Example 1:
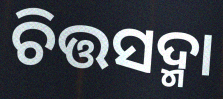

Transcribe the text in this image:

ଚିତ୍ତସଦ୍ମା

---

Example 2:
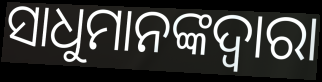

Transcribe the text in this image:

ସାଧୁମାନଙ୍କଦ୍ଵାରା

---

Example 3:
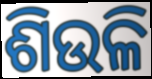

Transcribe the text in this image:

ଶିଉଳି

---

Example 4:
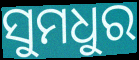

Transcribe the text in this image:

ସୁମଧୁର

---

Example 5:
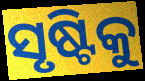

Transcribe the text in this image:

ସୃଷ୍ଟିକୁ